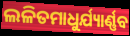
ଲଳିତମାଧୁର୍ଯ୍ୟାର୍ଣ୍ଣବ